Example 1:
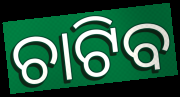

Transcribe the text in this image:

ଚାଟିବ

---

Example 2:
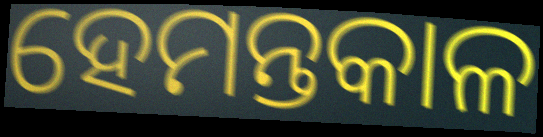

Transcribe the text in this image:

ହେମନ୍ତକାଳ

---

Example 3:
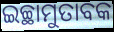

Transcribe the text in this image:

ଇଚ୍ଛାମୁତାବକ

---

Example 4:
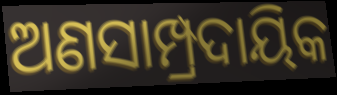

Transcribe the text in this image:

ଅଣସାମ୍ପ୍ରଦାୟିକ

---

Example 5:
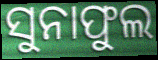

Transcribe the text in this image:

ସୁନାଫୁଲ